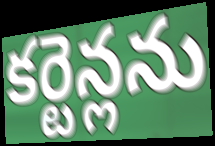
కర్టెన్లను